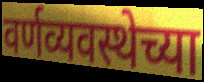
वर्णव्यवस्थेच्या